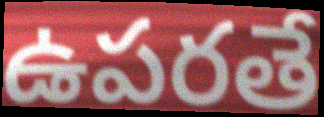
ఉపరతే